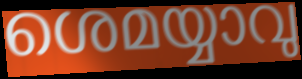
ശെമയ്യാവു